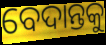
ବେଦାନ୍ତକୁ